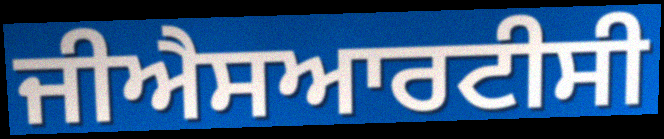
ਜੀਐਸਆਰਟੀਸੀ